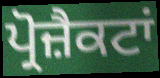
ਪ੍ਰੋਜ਼ੈਕਟਾਂ